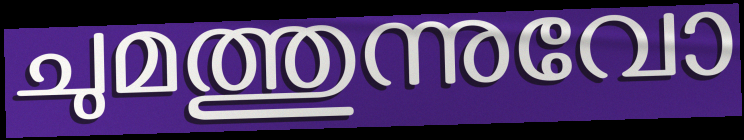
ചുമത്തുന്നുവോ